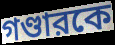
গণ্ডারকে